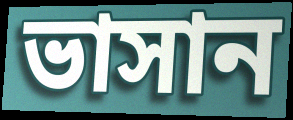
ভাসান